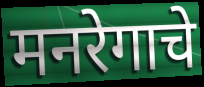
मनरेगाचे